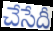
చేసేదీ